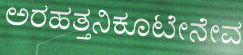
ಅರಹತ್ತನಿಕೂಟೇನೇವ